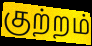
குற்றம்